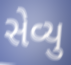
સેવ્યુ